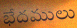
భేదములు